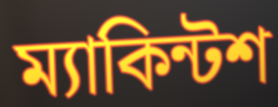
ম্যাকিন্টশ